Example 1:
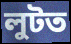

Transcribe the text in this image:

লুটত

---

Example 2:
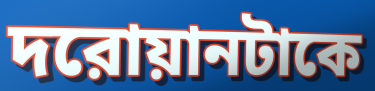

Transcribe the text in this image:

দরোয়ানটাকে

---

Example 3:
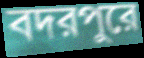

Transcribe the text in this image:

বদরপুরে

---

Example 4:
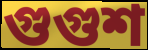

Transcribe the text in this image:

গুগুশ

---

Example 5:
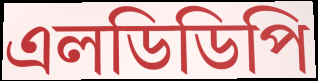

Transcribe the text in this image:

এলডিডিপি